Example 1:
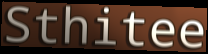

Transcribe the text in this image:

Sthitee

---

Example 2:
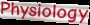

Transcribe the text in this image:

Physiology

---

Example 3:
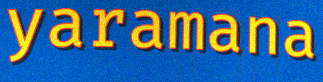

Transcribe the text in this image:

yaramana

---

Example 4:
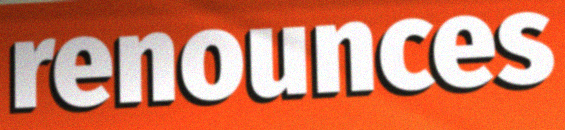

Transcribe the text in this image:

renounces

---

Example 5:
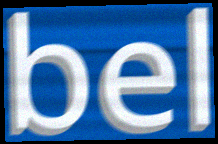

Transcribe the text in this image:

bel